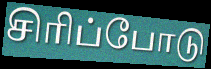
சிரிப்போடு